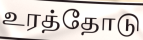
உரத்தோடு